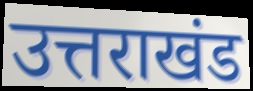
उत्तराखंड